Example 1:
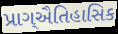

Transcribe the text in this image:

પ્રાગ્ઐતિહાસિક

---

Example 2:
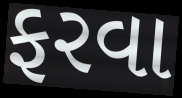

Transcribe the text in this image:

ફરવા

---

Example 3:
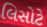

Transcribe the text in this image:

લિસોટે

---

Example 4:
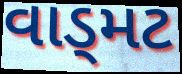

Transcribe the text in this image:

વાડ્મટ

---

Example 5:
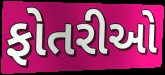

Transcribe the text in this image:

ફોતરીઓ